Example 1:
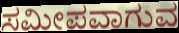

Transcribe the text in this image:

ಸಮೀಪವಾಗುವ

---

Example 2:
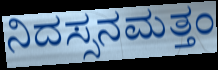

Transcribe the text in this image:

ನಿದಸ್ಸನಮತ್ತಂ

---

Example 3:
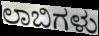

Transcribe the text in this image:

ಲಾಬಿಗಳು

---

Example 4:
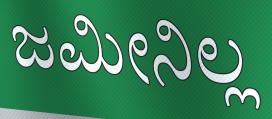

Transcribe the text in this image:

ಜಮೀನಿಲ್ಲ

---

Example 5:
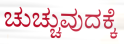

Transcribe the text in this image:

ಚುಚ್ಚುವುದಕ್ಕೆ